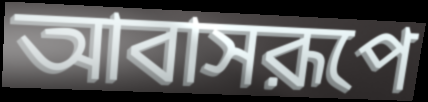
আবাসরূপে